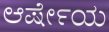
ಆರ್ಷೇಯ